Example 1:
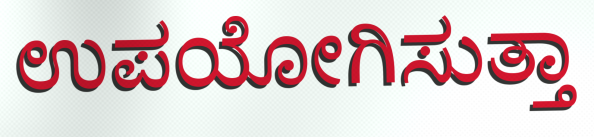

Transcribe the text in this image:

ಉಪಯೋಗಿಸುತ್ತಾ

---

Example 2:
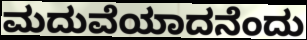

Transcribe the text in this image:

ಮದುವೆಯಾದನೆಂದು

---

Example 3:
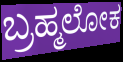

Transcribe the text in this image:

ಬ್ರಹ್ಮಲೋಕ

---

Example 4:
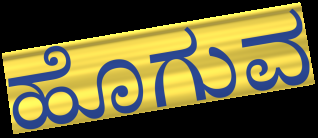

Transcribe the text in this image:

ಹೊಗುವ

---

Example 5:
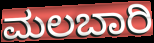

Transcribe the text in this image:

ಮಲಬಾರಿ